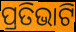
ପ୍ରତିଭାଟି